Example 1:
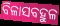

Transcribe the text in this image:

ବିଳାସବହୁଳ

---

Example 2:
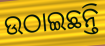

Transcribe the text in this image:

ଉଠାଇଛନ୍ତି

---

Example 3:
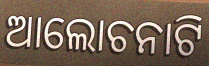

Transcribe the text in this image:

ଆଲୋଚନାଟି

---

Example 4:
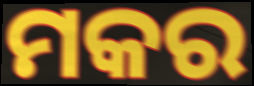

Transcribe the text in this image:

ମକର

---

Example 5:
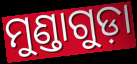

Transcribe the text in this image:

ମୁଣ୍ଡାଗୁଡ଼ା